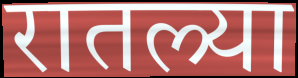
रातल्या